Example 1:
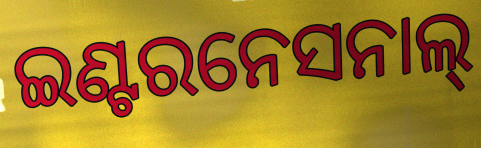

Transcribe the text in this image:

ଇଣ୍ଟରନେସନାଲ୍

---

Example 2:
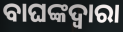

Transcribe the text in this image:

ବାଘଙ୍କଦ୍ୱାରା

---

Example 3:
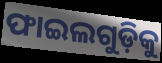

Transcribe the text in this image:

ଫାଇଲଗୁଡ଼ିକୁ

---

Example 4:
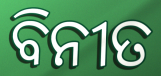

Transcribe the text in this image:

ବିନୀତ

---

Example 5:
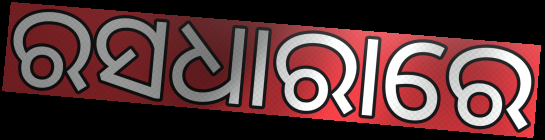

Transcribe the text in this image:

ରସଧାରାରେ